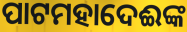
ପାଟମହାଦେଈଙ୍କ